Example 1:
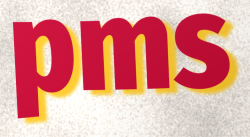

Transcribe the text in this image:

pms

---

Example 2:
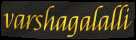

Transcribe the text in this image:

varshagalalli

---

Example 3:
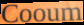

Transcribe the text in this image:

Cooum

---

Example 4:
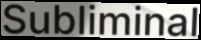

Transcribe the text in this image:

Subliminal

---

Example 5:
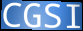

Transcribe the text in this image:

CGSI